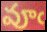
వూఁ